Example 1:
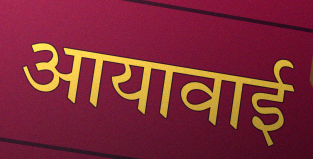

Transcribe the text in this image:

आयावाई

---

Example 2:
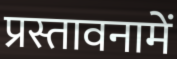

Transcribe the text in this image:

प्रस्तावनामें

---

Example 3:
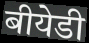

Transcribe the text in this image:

बीयेडी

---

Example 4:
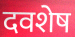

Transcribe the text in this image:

दवशेष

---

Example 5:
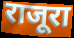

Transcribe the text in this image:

राजूरा